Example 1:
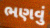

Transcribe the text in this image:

ભણવું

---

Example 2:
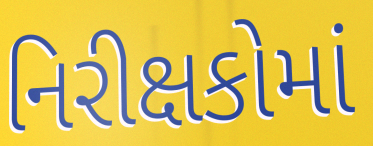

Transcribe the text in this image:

નિરીક્ષકોમાં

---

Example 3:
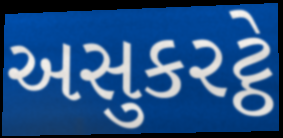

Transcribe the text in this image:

અસુકરટ્ઠે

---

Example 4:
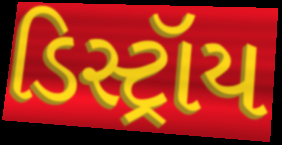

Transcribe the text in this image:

ડિસ્ટ્રૉય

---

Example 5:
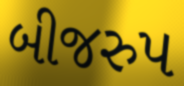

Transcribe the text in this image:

બીજરુપ